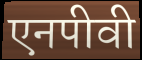
एनपीवी